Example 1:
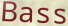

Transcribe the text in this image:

Bass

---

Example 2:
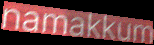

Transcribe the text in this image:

namakkum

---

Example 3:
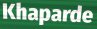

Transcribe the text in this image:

Khaparde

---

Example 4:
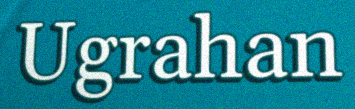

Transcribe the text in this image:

Ugrahan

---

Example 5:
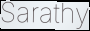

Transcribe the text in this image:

Sarathy